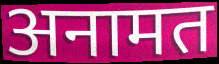
अनामत